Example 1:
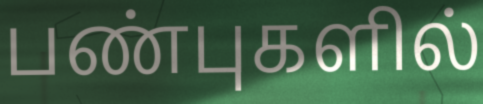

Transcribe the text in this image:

பண்புகளில்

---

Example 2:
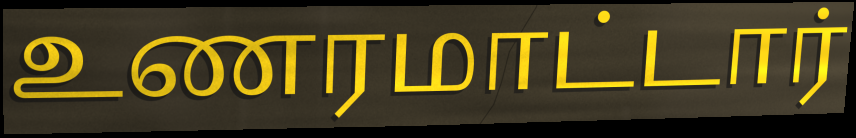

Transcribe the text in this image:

உணரமாட்டார்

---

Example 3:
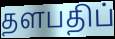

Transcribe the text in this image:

தளபதிப்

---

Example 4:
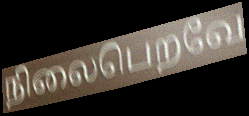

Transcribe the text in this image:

நிலைபெறவே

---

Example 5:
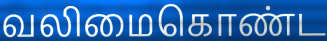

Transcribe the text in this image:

வலிமைகொண்ட